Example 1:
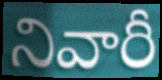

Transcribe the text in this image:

నివారీ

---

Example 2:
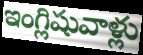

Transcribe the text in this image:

ఇంగ్లిషువాళ్లు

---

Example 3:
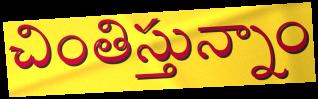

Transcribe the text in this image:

చింతిస్తున్నాం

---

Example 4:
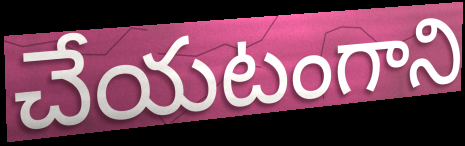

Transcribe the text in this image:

చేయటంగాని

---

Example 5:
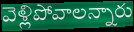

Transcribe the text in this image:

వెళ్లిపోవాలన్నారు